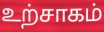
உற்சாகம்